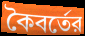
কৈবর্তের